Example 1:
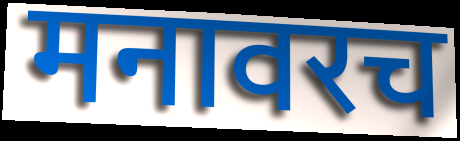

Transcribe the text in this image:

मनावरच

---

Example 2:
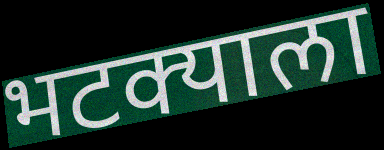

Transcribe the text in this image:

भटक्याला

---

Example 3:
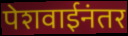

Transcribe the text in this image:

पेशवाईनंतर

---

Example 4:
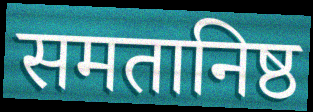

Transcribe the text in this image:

समतानिष्ठ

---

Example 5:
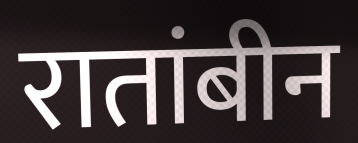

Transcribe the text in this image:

रातांबीन